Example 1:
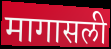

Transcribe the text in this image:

मागासली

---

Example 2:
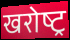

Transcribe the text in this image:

खरोष्ट्र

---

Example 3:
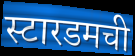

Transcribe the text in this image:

स्टारडमची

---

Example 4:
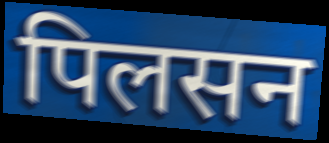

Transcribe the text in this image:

पिलसन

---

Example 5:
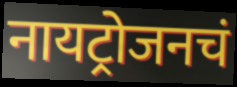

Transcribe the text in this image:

नायट्रोजनचं